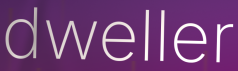
dweller